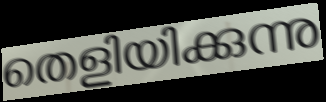
തെളിയിക്കുന്നു